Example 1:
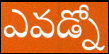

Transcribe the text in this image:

ఎవడ్నో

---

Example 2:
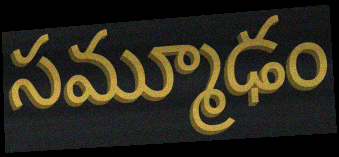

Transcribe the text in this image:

సమ్మూఢం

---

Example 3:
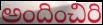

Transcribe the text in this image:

అందించిరి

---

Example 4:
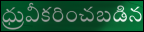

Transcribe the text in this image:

ధ్రువీకరించబడిన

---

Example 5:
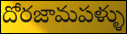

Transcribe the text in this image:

దోరజామపళ్ళు